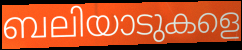
ബലിയാടുകളെ